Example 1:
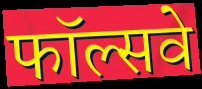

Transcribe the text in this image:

फॉल्सवे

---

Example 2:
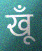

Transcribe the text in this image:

खूँ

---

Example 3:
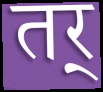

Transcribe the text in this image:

तर्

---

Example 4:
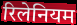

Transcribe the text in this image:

रिलेनियम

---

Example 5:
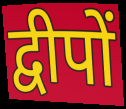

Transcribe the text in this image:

द्वीपों